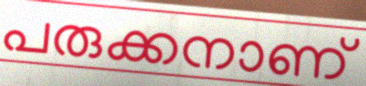
പരുക്കനാണ്